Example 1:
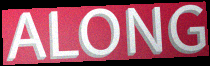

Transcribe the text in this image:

ALONG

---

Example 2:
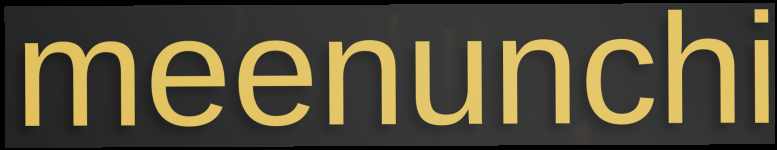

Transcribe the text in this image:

meenunchi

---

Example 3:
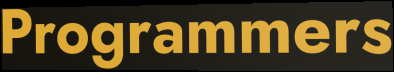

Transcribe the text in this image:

Programmers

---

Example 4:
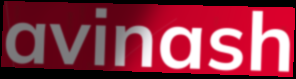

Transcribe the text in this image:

avinash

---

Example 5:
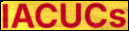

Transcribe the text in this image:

IACUCs